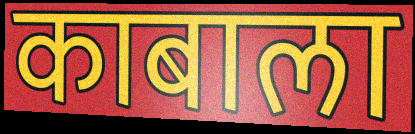
काबाला